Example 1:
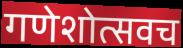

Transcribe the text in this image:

गणेशोत्सवच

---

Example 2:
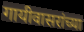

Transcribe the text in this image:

गायीवासरांच्या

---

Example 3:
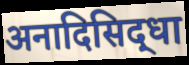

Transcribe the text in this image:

अनादिसिद्धा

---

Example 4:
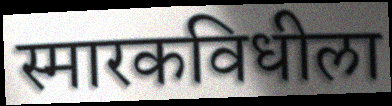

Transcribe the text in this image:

स्मारकविधीला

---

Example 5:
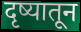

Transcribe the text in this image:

दृष्यातून